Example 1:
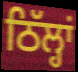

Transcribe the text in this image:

ਠਿੱਲ੍ਹਾਂ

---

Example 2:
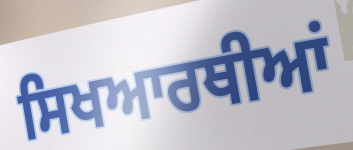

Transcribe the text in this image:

ਸਿਖਆਰਥੀਆਂ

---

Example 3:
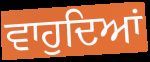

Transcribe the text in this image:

ਵਾਹੁਦਿਆਂ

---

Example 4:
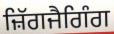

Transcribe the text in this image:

ਜ਼ਿੱਗਜੈਗਿੰਗ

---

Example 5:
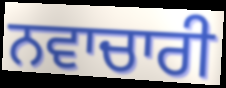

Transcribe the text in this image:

ਨਵਾਚਾਰੀ